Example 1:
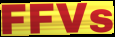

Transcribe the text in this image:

FFVs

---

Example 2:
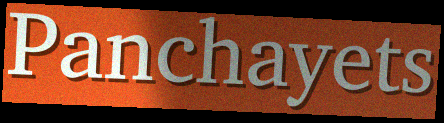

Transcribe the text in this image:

Panchayets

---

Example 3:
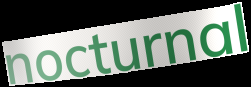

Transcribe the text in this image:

nocturnal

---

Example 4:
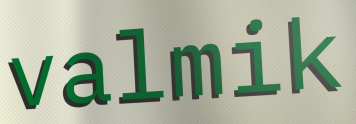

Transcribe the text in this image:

valmik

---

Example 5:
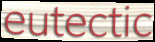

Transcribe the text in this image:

eutectic